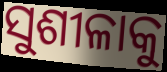
ସୁଶୀଳାକୁ